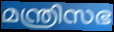
മന്ത്രിസഭ